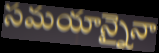
సమయాన్నైనా